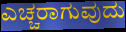
ಎಚ್ಚರಾಗುವುದು